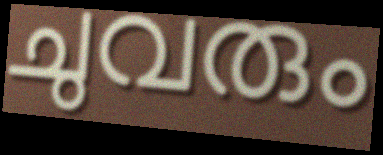
ചുവരും